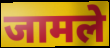
जामले